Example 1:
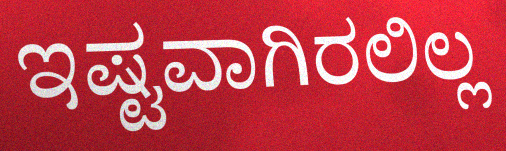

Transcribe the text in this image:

ಇಷ್ಟವಾಗಿರಲಿಲ್ಲ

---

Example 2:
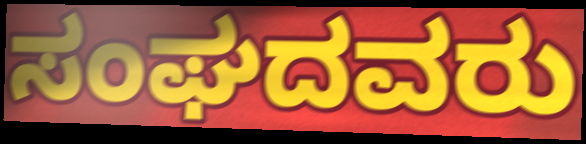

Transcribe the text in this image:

ಸಂಘದವರು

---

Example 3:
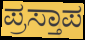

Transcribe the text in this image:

ಪ್ರಸ್ತಾಪ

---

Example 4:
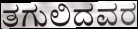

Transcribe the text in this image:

ತಗುಲಿದವರ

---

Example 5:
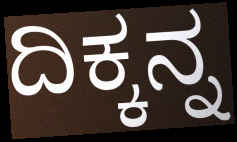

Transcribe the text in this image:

ದಿಕ್ಕನ್ನ